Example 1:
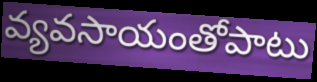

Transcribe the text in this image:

వ్యవసాయంతోపాటు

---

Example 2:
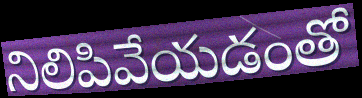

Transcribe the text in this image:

నిలిపివేయడంతో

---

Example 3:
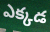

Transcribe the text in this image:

ఎక్కడ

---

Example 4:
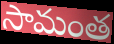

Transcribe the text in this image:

సామంత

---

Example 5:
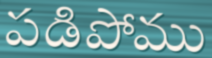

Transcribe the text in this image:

పడిపోము